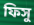
ফিসু